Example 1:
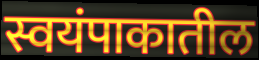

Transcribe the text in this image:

स्वयंपाकातील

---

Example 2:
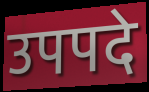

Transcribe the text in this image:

उपपदे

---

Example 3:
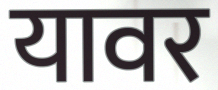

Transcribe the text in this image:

यावर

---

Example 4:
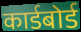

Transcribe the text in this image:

कार्डबोर्ड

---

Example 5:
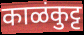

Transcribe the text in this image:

काळंकुट्ट